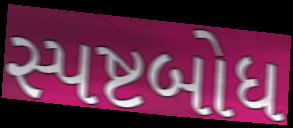
સ્પષ્ટબોધ